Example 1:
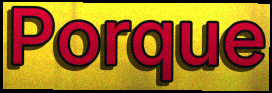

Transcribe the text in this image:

Porque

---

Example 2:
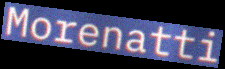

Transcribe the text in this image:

Morenatti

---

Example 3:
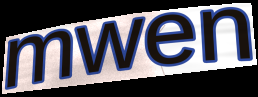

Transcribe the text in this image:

mwen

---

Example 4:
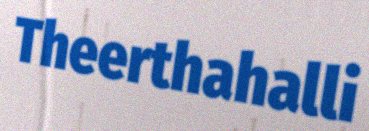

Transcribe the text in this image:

Theerthahalli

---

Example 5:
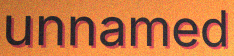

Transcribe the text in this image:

unnamed